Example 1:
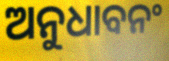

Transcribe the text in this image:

ଅନୁଧାବନଂ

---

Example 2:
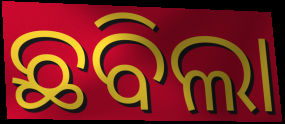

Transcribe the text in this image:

ଛବିଲା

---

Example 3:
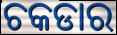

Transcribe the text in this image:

ଚକଡାର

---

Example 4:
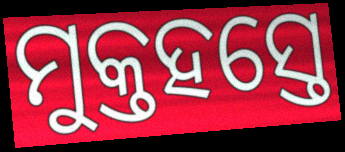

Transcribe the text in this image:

ମୁକ୍ତହସ୍ତେ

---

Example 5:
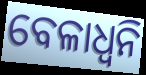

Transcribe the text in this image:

ବେଳାଧ୍ୱନି